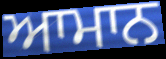
ਆਮਾਨ